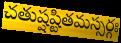
చతుష్షష్టితమస్సర్గః